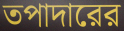
তপাদারের